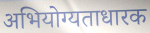
अभियोग्यताधारक